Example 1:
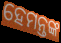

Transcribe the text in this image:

ହେମନ୍ତଙ୍କ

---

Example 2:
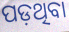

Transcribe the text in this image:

ପଡ଼ଥିବା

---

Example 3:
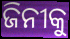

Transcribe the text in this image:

ଜିନୀକୁ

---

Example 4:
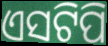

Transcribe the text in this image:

ଏସଟିପି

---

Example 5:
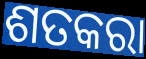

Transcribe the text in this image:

ଶତକରା